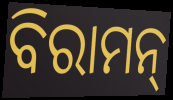
ବିରାମନ୍